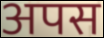
अपस